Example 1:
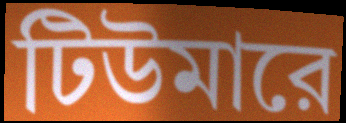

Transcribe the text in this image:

টিউমারে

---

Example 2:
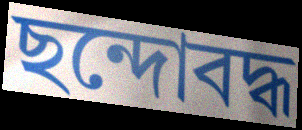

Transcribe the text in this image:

ছন্দোবদ্ধ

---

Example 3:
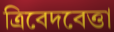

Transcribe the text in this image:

ত্রিবেদবেত্তা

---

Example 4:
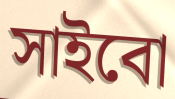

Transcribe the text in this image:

সাইবো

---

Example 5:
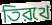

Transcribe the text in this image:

তিরথে